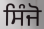
ਸਿੰਜੋ